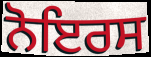
ਨੋਇਰਸ